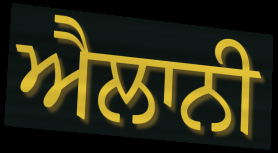
ਐਲਾਨੀ